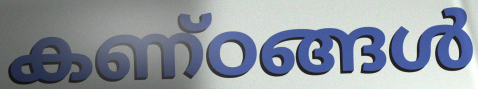
കണ്ഠങ്ങൾ